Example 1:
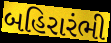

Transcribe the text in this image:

બહિરારંભી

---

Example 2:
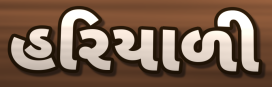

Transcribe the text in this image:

હરિયાળી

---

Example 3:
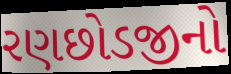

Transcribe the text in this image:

રણછોડજીનો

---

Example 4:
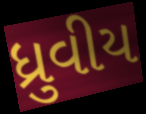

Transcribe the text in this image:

ધ્રુવીય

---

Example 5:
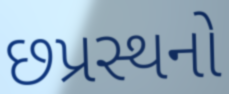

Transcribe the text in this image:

છપ્રસ્થનો